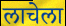
लाचेला